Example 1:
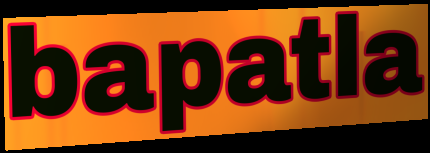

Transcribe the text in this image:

bapatla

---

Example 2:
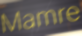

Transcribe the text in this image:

Mamre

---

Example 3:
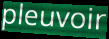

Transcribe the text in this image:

pleuvoir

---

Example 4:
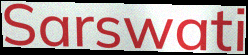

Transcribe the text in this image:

Sarswati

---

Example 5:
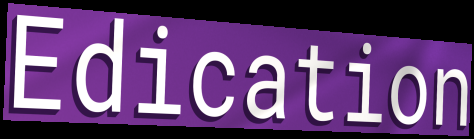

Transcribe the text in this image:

Edication